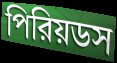
পিরিয়ডস